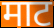
माट